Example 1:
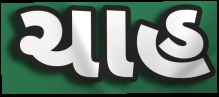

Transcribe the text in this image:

ચાહ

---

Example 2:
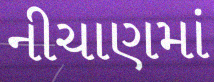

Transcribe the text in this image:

નીચાણમાં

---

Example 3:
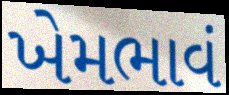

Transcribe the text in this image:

ખેમભાવં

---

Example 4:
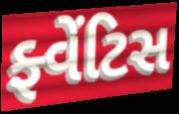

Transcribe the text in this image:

ફ્વેંટિસ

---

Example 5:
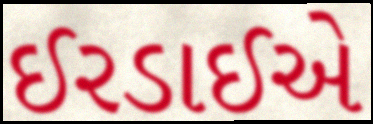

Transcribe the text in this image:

ઈરડાઈએ